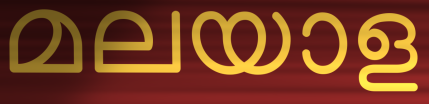
മലയാള